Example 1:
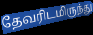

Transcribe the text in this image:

தேவரிடமிருந்து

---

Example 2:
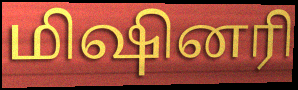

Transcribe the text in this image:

மிஷினரி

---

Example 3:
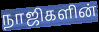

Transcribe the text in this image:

நாஜிகளின்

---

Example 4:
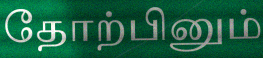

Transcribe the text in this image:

தோற்பினும்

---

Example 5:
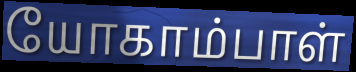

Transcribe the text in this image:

யோகாம்பாள்